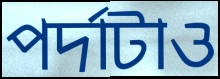
পর্দাটাও